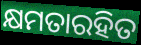
କ୍ଷମତାରହିତ